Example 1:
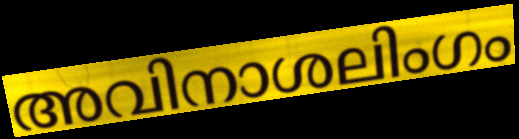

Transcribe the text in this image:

അവിനാശലിംഗം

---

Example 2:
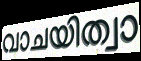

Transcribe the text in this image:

വാചയിത്വാ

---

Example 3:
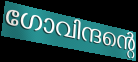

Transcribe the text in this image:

ഗോവിന്ദന്റെ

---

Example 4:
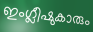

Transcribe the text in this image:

ഇംഗ്ലീഷുകാരും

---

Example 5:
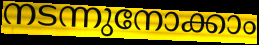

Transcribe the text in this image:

നടന്നുനോക്കാം